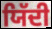
ਯਿੱਦੀ